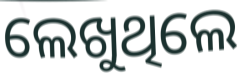
ଲେଖୁଥିଲେ